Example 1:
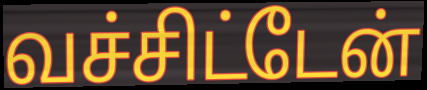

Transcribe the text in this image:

வச்சிட்டேன்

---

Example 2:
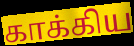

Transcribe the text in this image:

காக்கிய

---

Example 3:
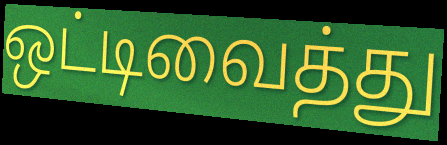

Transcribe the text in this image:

ஒட்டிவைத்து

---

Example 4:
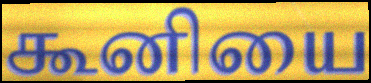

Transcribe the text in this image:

கூனியை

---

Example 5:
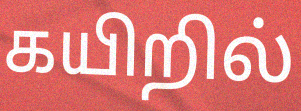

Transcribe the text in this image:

கயிறில்